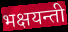
भक्षयन्ती